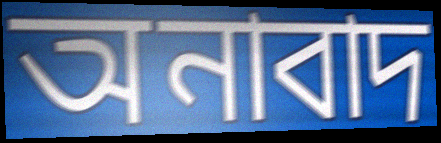
অনাবাদ